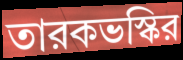
তারকভস্কির